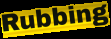
Rubbing